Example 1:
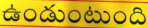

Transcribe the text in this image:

ఉండుంటుంది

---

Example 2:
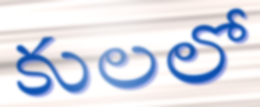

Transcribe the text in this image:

కులలో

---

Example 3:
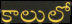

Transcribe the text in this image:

కాలులో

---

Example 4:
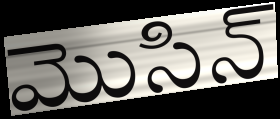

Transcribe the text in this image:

మొసిన్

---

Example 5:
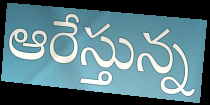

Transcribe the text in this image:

ఆరేస్తున్న